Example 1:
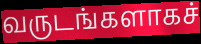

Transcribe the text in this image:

வருடங்களாகச்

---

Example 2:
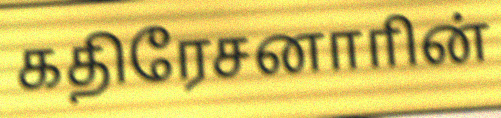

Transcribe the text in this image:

கதிரேசனாரின்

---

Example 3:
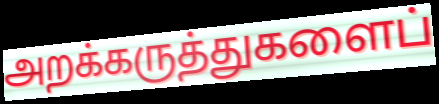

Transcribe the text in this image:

அறக்கருத்துகளைப்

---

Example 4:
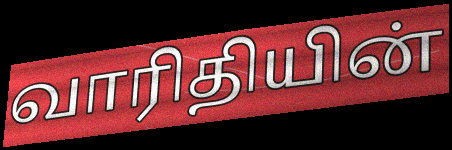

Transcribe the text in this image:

வாரிதியின்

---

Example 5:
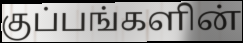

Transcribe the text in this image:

குப்பங்களின்